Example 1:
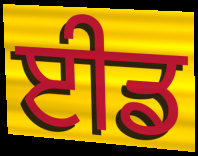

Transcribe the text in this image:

ਈਡ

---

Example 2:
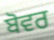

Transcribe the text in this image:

ਬੋਵਰ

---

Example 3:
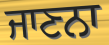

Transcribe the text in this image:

ਜਾਣਨਾ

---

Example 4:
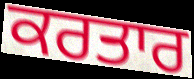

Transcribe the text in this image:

ਕਰਤਾਰ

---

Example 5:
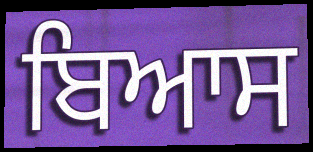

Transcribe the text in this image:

ਬਿਆਸ